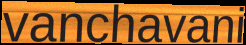
vanchavani